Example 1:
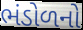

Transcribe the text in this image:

ભંડોળનો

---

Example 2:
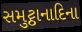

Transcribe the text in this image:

સમુટ્ઠાનાદિના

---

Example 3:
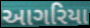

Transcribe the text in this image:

આગરિયા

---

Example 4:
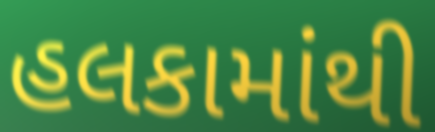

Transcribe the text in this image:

હલકામાંથી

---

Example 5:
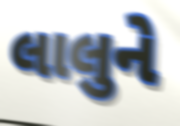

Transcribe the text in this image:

લાલુને